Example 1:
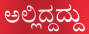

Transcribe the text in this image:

ಅಲ್ಲಿದ್ದದ್ದು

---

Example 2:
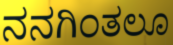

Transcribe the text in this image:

ನನಗಿಂತಲೂ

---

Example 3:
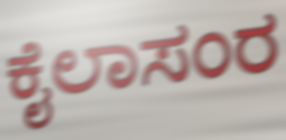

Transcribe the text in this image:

ಕೈಲಾಸಂರ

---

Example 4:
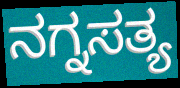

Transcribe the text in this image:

ನಗ್ನಸತ್ಯ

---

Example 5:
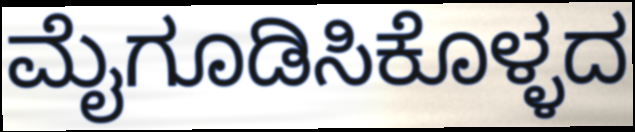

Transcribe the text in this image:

ಮೈಗೂಡಿಸಿಕೊಳ್ಳದ